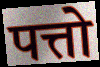
पत्तो